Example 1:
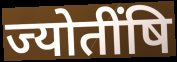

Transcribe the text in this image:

ज्योतींषि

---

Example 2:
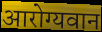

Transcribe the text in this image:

आरोग्यवान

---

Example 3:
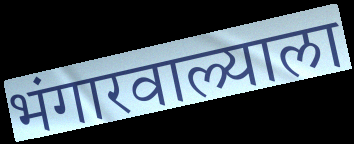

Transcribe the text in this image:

भंगारवाल्याला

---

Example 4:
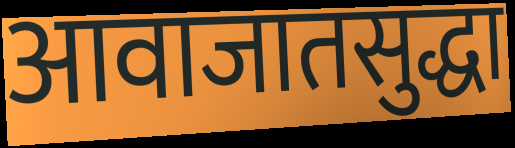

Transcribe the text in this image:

आवाजातसुद्धा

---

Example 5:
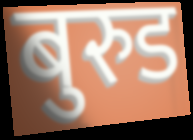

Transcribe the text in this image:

बुरुड